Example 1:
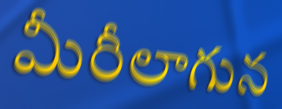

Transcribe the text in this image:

మీరీలాగున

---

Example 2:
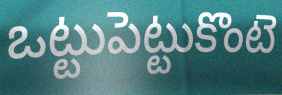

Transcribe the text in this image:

ఒట్టుపెట్టుకొంటె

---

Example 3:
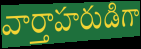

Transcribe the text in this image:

వార్తాహరుడిగా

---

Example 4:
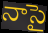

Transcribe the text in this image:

నాసై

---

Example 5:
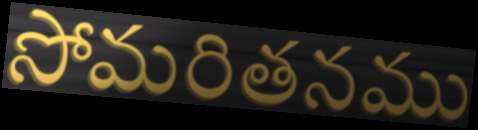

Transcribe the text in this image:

సోమరితనము